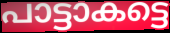
പാട്ടാകട്ടെ